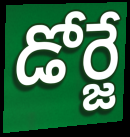
డోర్జే